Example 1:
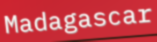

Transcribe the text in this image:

Madagascar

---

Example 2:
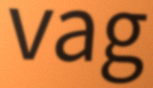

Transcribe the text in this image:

vag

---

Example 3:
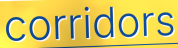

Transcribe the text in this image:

corridors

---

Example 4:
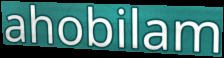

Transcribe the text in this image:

ahobilam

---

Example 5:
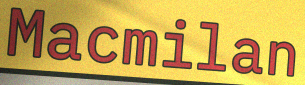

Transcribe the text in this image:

Macmilan